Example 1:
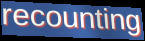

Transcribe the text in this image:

recounting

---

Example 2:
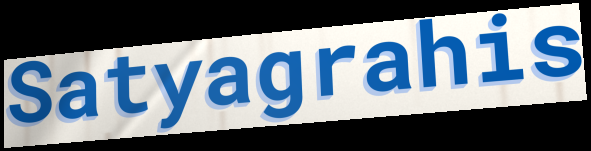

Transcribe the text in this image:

Satyagrahis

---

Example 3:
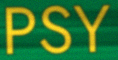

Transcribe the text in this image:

PSY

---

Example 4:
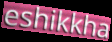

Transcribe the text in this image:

eshikkha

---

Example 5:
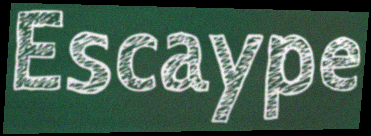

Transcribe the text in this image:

Escaype